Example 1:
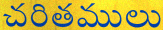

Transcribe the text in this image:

చరితములు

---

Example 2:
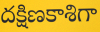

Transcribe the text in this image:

దక్షిణకాశిగా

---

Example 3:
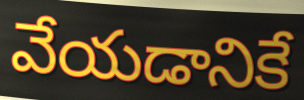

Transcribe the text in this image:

వేయడానికే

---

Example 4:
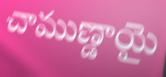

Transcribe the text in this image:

చాముణ్డాయై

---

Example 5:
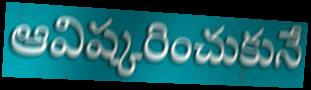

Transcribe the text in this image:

ఆవిష్కరించుకునే